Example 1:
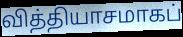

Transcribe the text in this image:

வித்தியாசமாகப்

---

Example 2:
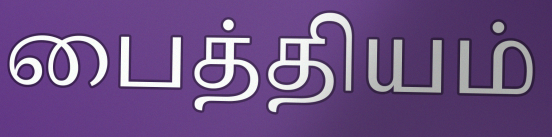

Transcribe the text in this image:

பைத்தியம்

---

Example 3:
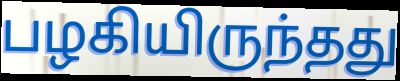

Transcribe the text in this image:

பழகியிருந்தது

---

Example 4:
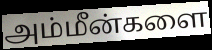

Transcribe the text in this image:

அம்மீன்களை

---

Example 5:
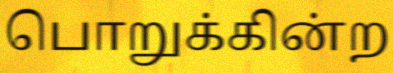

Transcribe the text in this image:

பொறுக்கின்ற